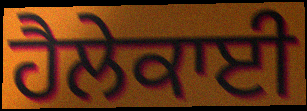
ਹੈਲੇਕਾਈ